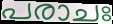
പരാചഃ